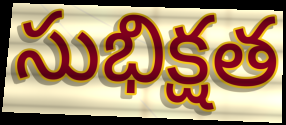
సుభిక్షత